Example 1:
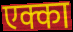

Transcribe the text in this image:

एक्का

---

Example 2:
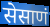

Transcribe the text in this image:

सेसाणं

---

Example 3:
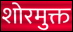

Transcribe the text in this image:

शोरमुक्त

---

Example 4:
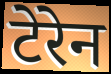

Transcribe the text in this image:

टेरेन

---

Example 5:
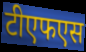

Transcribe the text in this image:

टीएफएस